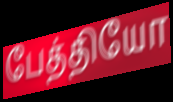
பேத்தியோ